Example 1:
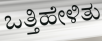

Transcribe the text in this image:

ಒತ್ತಿಹೇಳಿತು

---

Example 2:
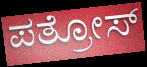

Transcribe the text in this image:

ಪತ್ರೋಸ್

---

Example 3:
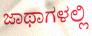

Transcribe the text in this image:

ಜಾಥಾಗಳಲ್ಲಿ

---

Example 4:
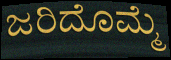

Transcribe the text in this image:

ಜರಿದೊಮ್ಮೆ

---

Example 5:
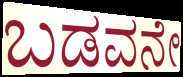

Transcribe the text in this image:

ಬಡವನೇ